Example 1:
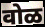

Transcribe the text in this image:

वोळ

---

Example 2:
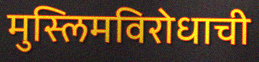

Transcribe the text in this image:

मुस्लिमविरोधाची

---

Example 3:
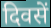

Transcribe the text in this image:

दिवसें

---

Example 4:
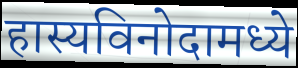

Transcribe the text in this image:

हास्यविनोदामध्ये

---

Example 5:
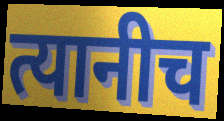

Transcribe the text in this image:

त्यानीच